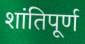
शांतिपूर्ण